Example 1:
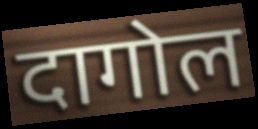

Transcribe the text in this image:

दागोल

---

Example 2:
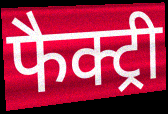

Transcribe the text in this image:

फैक्ट्री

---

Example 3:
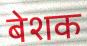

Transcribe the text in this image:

बेशक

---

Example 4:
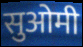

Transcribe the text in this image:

सुओमी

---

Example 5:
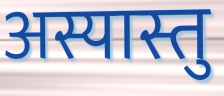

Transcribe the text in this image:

अस्यास्तु